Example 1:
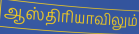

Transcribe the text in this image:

ஆஸ்திரியாவிலும்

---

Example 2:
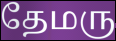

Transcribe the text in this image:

தேமரு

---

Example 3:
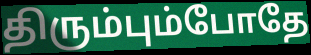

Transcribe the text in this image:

திரும்பும்போதே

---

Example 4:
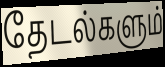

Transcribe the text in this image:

தேடல்களும்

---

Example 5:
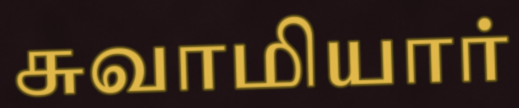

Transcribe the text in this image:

சுவாமியார்